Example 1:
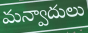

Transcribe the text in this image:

మన్వాదులు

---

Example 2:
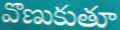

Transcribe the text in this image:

వొణుకుతూ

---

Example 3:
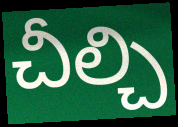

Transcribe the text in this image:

చీల్చి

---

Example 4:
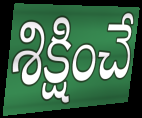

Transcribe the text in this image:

శిక్షించే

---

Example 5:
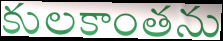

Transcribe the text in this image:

కులకాంతను